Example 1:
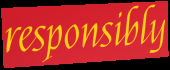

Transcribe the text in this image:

responsibly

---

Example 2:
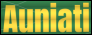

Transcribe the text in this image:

Auniati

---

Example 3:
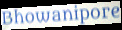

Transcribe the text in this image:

Bhowanipore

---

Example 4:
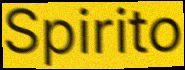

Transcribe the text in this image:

Spirito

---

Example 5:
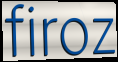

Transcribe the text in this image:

firoz